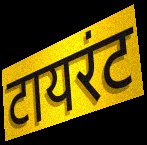
टायरंट